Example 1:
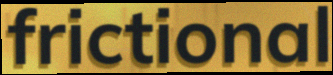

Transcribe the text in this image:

frictional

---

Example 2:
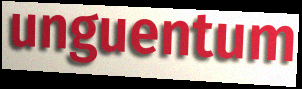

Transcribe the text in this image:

unguentum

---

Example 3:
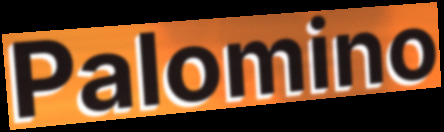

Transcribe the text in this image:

Palomino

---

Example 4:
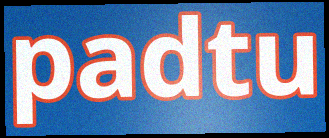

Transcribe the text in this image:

padtu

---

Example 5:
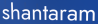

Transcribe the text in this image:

shantaram